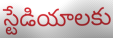
స్టేడియాలకు